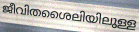
ജീവിതശൈലിയിലുള്ള